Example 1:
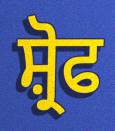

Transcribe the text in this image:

ਸ਼੍ਰੋਫ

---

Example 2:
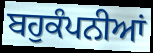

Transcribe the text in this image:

ਬਹੁਕੰਪਨੀਆਂ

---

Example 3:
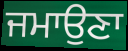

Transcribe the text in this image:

ਜਮਾਉਣਾ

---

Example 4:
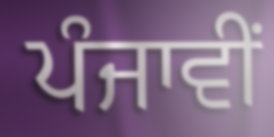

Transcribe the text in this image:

ਪੰਜਾਵੀਂ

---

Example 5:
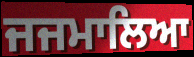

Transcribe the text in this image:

ਜਜਮਾਲਿਆ